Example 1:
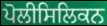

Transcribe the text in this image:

ਪੋਲੀਸਿਲਿਕਨ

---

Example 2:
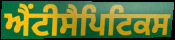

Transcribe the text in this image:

ਐਂਟੀਸੈਪਿਟਿਕਸ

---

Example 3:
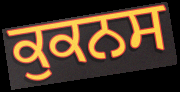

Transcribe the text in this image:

ਕੁਕਨਸ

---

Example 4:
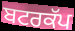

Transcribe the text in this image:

ਬਟਰਕੱਪ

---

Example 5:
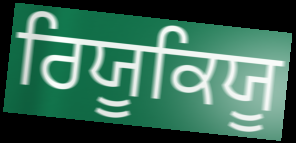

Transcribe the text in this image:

ਰਿਯੂਕਿਯੂ